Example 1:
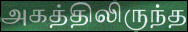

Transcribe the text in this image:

அகத்திலிருந்த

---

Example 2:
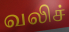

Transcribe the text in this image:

வலிச்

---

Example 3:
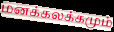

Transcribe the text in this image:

மனக்கலக்கமும்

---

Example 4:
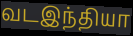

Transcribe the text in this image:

வடஇந்தியா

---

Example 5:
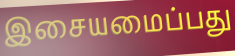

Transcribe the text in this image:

இசையமைப்பது